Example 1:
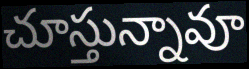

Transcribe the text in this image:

చూస్తున్నావూ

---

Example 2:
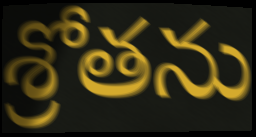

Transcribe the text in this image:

శ్రోతను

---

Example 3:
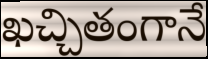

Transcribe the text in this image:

ఖచ్చితంగానే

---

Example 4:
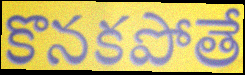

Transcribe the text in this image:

కొనకపోతే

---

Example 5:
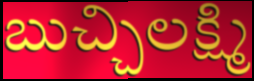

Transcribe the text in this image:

బుచ్చిలక్ష్మి